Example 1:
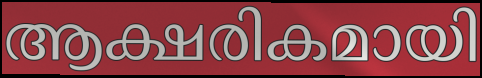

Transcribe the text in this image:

ആക്ഷരികമായി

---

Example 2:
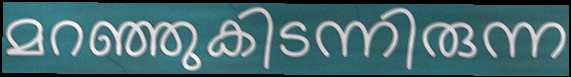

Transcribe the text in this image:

മറഞ്ഞുകിടന്നിരുന്ന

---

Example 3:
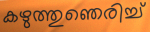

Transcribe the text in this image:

കഴുത്തുഞെരിച്ച്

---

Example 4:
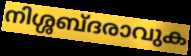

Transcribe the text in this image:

നിശ്ശബ്ദരാവുക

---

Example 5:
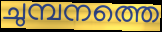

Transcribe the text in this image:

ചുമ്പനത്തെ